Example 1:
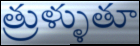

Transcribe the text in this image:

త్రుళ్ళుతూ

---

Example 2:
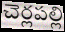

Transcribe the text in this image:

చెర్లపల్లి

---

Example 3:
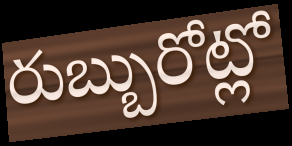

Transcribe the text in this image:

రుబ్బురోట్లో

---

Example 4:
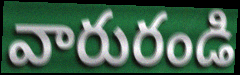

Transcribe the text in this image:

వారురండి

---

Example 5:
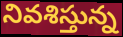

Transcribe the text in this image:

నివశిస్తున్న